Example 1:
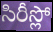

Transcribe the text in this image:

సిరీస్లో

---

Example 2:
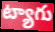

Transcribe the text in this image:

ట్యాగు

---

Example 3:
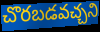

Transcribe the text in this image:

చొరబడవచ్చని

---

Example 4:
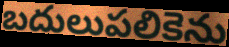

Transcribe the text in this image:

బదులుపలికెను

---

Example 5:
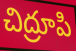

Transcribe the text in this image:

చిద్రూపి